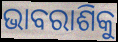
ଭାବରାଶିକୁ